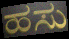
ಹಸು